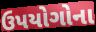
ઉપયોગોના